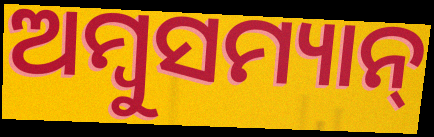
ଅମ୍ବୁସମ୍ୟାନ୍